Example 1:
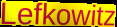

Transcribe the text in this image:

Lefkowitz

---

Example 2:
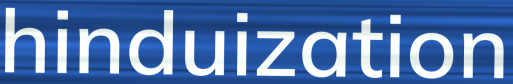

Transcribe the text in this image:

hinduization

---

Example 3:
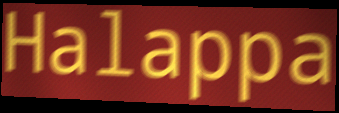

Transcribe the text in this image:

Halappa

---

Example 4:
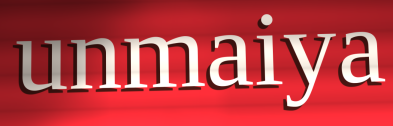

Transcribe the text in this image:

unmaiya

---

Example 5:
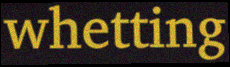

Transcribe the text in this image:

whetting